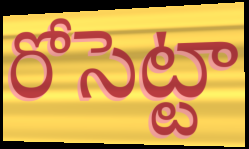
రోసెట్టా